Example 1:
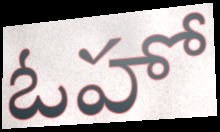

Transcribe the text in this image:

ఓహో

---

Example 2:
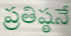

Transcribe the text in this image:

ప్రతిష్ఠనే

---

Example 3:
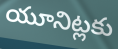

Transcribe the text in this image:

యూనిట్లకు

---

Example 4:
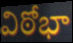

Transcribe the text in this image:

విఠోభా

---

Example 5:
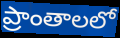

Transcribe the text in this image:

ప్రాంతాలలో